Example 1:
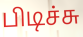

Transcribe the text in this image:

பிடிச்சு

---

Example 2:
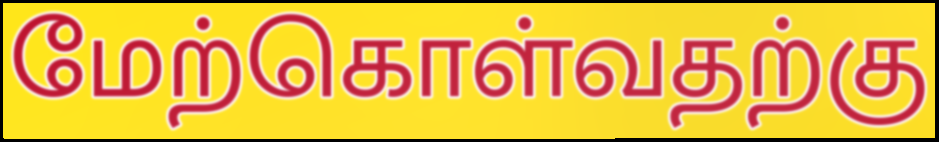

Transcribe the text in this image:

மேற்கொள்வதற்கு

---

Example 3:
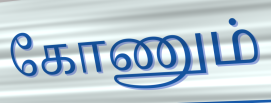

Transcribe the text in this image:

கோணும்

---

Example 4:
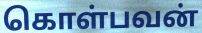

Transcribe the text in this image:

கொள்பவன்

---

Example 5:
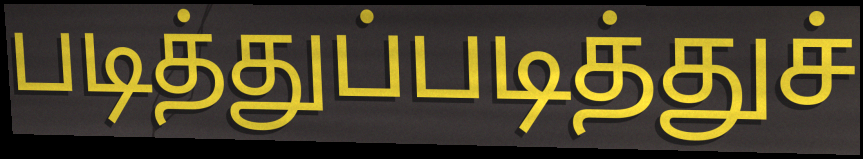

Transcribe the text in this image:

படித்துப்படித்துச்